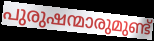
പുരുഷന്മാരുമുണ്ട്